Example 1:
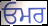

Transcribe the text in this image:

ਓਮਰ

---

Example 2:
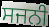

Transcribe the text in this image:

ਸਜਨੀ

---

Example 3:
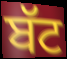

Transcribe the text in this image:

ਬੱਟ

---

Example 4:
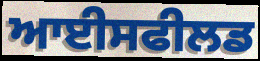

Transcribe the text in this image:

ਆਈਸਫੀਲਡ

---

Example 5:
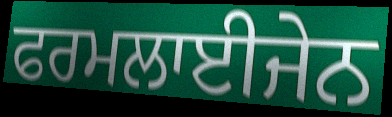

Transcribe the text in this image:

ਫਰਮਲਾਈਜੇਨ